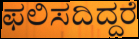
ಫಲಿಸದಿದ್ದರೆ